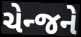
ચેન્જને